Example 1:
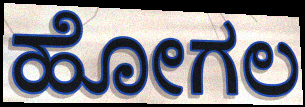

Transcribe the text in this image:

ಹೋಗಲ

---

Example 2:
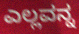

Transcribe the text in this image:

ಎಲ್ಲವನ್ನ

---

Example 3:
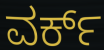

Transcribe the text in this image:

ವರ್ಕ್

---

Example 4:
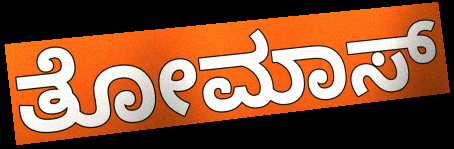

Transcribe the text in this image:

ತೋಮಾಸ್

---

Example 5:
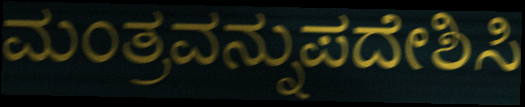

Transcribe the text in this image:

ಮಂತ್ರವನ್ನುಪದೇಶಿಸಿ